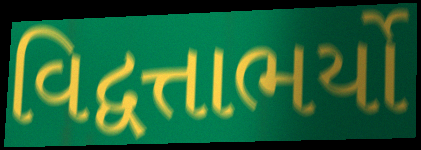
વિદ્વત્તાભર્યો